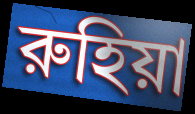
রুহিয়া